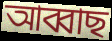
আব্বাছ